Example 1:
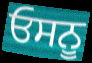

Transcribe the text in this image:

ਓਸਨੂ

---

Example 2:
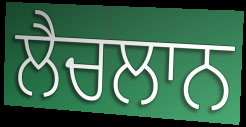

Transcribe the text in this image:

ਲੈਚਲਾਨ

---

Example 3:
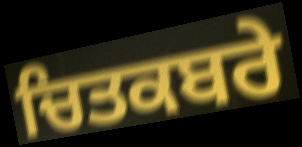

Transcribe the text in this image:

ਚਿਤਕਬਰੇ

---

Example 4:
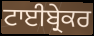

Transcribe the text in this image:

ਟਾਈਬ੍ਰੇਕਰ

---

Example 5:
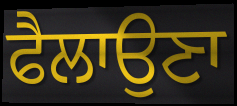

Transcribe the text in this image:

ਫੈਲਾਉਣਾ